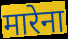
मारेना